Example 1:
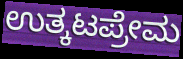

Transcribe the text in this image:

ಉತ್ಕಟಪ್ರೇಮ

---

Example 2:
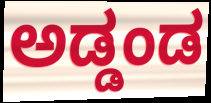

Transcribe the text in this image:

ಅಡ್ಡಂಡ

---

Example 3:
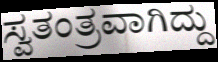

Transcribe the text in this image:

ಸ್ವತಂತ್ರವಾಗಿದ್ದು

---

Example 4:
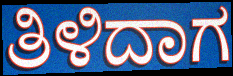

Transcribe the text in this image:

ತಿಳಿದಾಗ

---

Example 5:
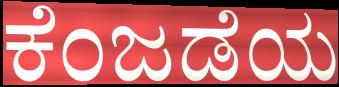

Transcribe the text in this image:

ಕೆಂಜಡೆಯ